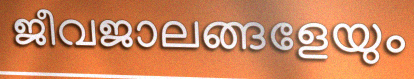
ജീവജാലങ്ങളേയും